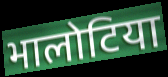
भालोटिया